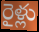
రైళ్లు